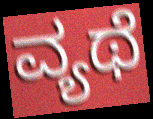
ವ್ಯಥೆ